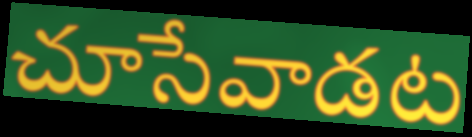
చూసేవాడట